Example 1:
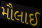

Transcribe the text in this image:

મૌલાઈ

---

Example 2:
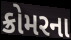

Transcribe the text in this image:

ક્રોમરના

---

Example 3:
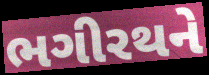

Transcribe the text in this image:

ભગીરથને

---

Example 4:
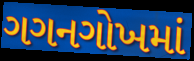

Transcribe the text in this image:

ગગનગોખમાં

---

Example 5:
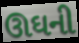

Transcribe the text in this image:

ઊઘની